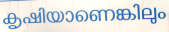
കൃഷിയാണെങ്കിലും